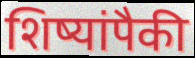
शिष्यांपैकी